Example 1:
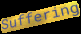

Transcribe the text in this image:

Suffering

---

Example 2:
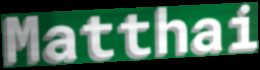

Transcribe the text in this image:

Matthai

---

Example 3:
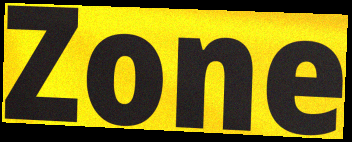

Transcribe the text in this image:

Zone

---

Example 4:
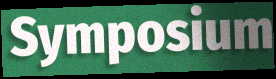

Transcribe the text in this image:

Symposium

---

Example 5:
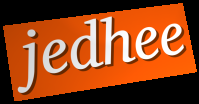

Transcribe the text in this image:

jedhee